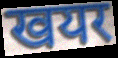
खयर